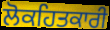
ਲੋਕਹਿਤਕਾਰੀ